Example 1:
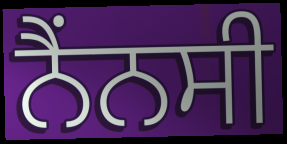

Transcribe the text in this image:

ਨੈਂਨਸੀ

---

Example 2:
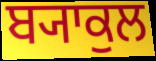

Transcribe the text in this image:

ਬ੍ਯਾਕੁਲ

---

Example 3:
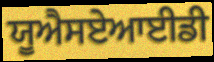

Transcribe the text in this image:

ਯੂਐਸਏਆਈਡੀ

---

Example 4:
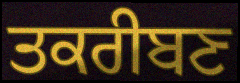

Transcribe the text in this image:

ਤਕਰੀਬਣ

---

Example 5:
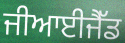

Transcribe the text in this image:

ਜੀਆਈਜੈੱਡ